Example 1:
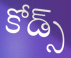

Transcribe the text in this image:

కోడ్స్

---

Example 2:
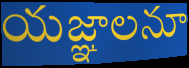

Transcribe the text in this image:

యజ్ఞాలనూ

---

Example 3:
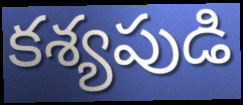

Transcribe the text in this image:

కశ్యపుడి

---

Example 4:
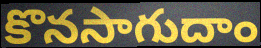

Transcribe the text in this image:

కొనసాగుదాం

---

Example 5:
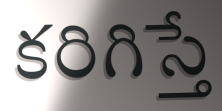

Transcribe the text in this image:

కరిగిస్తే